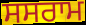
ਸਸਰਾਮ